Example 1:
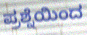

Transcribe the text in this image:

ಪ್ರಶ್ನೆಯಿಂದ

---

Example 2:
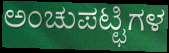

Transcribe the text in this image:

ಅಂಚುಪಟ್ಟಿಗಳ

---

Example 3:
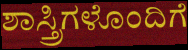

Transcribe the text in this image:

ಶಾಸ್ತ್ರಿಗಳೊಂದಿಗೆ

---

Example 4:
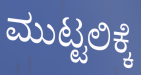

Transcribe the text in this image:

ಮುಟ್ಟಲಿಕ್ಕೆ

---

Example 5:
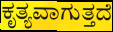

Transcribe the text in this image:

ಕೃತ್ಯವಾಗುತ್ತದೆ